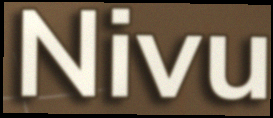
Nivu